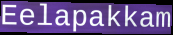
Eelapakkam